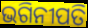
ଭଗିନୀପତି